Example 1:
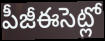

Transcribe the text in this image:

పీజీఈసెట్లో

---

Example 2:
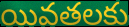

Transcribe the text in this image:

యివతలకు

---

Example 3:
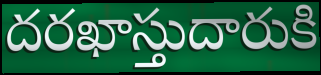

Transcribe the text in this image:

దరఖాస్తుదారుకి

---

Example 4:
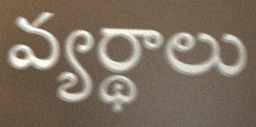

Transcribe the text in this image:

వ్యర్థాలు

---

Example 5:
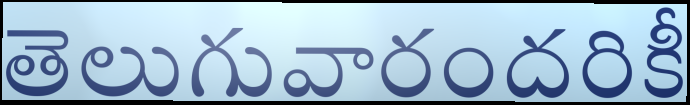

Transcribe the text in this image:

తెలుగువారందరికీ